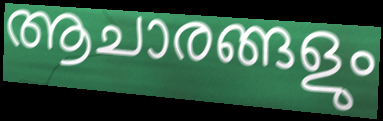
ആചാരങ്ങളും